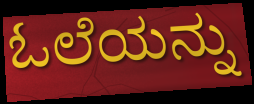
ಓಲೆಯನ್ನು